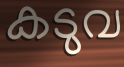
കടുവ